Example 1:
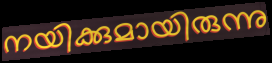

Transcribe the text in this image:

നയിക്കുമായിരുന്നു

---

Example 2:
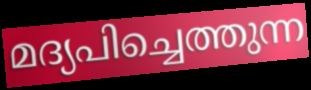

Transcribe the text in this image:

മദ്യപിച്ചെത്തുന്ന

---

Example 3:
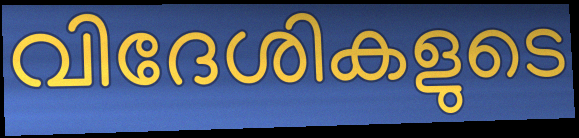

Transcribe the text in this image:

വിദേശികളുടെ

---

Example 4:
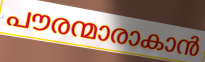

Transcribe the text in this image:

പൗരന്മാരാകാൻ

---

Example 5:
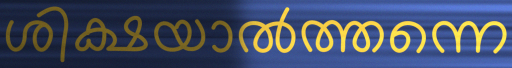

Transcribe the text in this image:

ശിക്ഷയാൽത്തന്നെ